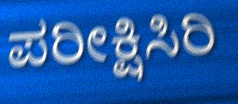
ಪರೀಕ್ಷಿಸಿರಿ